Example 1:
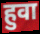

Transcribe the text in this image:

हुवा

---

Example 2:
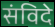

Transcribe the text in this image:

संविदे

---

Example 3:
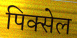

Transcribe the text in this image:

पिक्सेल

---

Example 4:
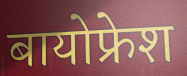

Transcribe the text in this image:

बायोफ्रेश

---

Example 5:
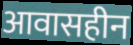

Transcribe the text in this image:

आवासहीन